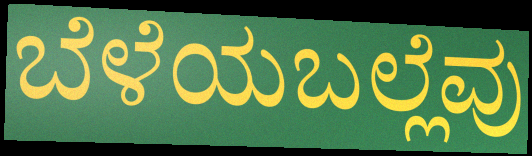
ಬೆಳೆಯಬಲ್ಲೆವು